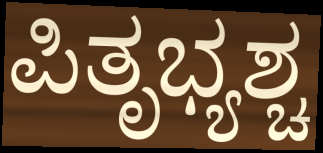
ಪಿತೃಭ್ಯಶ್ಚ